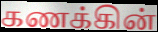
கணக்கின்